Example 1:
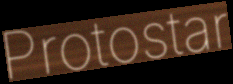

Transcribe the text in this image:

Protostar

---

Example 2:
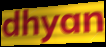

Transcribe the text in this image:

dhyan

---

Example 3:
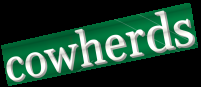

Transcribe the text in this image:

cowherds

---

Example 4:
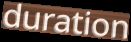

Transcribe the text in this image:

duration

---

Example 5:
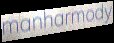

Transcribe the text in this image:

manharmody